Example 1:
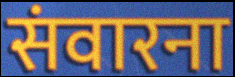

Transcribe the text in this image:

संवारना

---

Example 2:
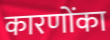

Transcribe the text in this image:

कारणोंका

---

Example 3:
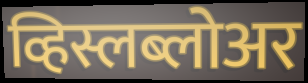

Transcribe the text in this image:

व्हिस्लब्लोअर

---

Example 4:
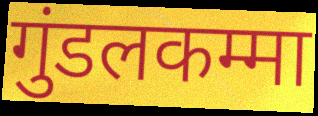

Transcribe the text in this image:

गुंडलकम्मा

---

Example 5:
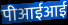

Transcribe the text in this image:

पीआईआई